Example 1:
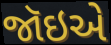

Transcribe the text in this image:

જૉઇએ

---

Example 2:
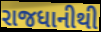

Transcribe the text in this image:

રાજધાનીથી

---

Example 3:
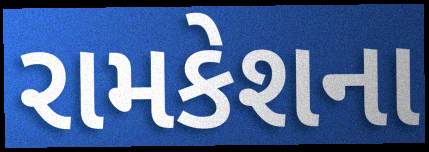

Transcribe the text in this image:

રામકેશના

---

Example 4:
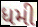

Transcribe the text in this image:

ધમી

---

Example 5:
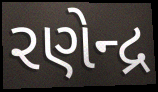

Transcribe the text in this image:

રણેન્દ્ર